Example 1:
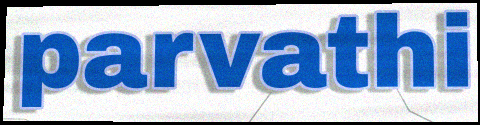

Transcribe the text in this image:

parvathi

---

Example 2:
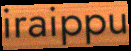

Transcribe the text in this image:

iraippu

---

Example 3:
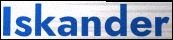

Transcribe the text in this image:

Iskander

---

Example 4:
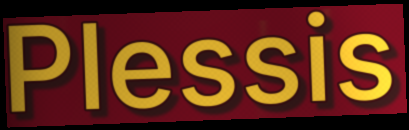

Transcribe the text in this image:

Plessis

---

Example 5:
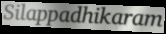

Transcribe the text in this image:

Silappadhikaram